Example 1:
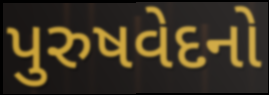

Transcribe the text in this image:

પુરુષવેદનો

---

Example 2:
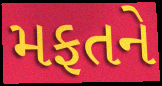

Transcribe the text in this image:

મફતને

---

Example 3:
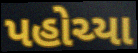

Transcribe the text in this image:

પહોચ્યા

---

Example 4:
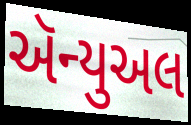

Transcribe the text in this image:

ઍન્યુઅલ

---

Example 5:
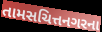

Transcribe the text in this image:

તામસચિત્તનગરના